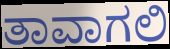
ತಾವಾಗಲಿ